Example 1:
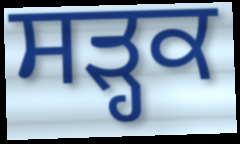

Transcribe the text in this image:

ਸੜ੍ਹਕ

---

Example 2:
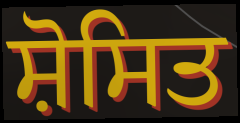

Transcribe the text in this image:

ਸ਼ੋਸਿਤ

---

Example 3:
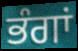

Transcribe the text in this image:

ਭੰਗਾਂ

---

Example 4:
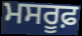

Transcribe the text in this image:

ਮਸਰੂਫ਼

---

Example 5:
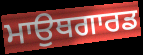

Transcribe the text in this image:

ਮਾਉਥਗਾਰਡ